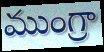
ముంగ్రా